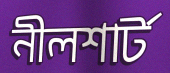
নীলশার্ট